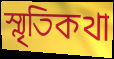
স্মৃতিকথা